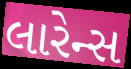
લારેન્સ